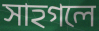
সাহগলে